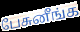
பேசுனீங்க